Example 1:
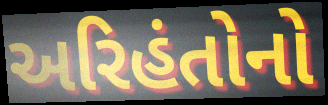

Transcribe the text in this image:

અરિહંતોનો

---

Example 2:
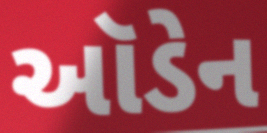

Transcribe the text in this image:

ઑડેન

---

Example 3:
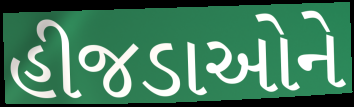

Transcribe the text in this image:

હીજડાઓને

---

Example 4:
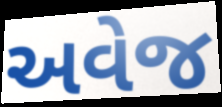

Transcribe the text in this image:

અવેજ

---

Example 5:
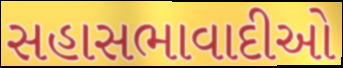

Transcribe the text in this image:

સહાસભાવાદીઓ